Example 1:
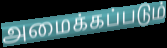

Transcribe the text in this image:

அமைக்கப்படும்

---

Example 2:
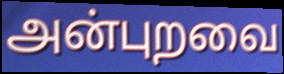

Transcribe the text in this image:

அன்புறவை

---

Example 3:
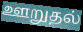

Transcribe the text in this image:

ஊறுதல்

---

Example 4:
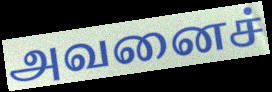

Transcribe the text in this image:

அவனைச்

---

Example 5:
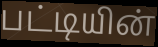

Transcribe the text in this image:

பட்டியின்